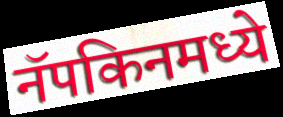
नॅपकिनमध्ये